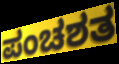
ಪಂಚಶತ